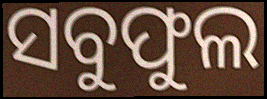
ସବୁଫୁଲ